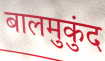
बालमुकुंद